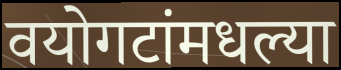
वयोगटांमधल्या